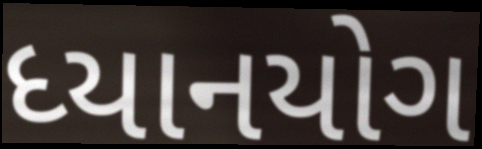
ધ્યાનયોગ